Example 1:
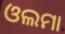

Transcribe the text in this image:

ଓଲମା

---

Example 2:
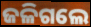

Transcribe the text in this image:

ଜଳିଗଲେ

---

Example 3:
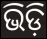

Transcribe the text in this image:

ଭିଡ଼ି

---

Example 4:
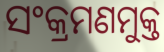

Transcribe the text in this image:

ସଂକ୍ରମଣମୁକ୍ତ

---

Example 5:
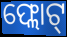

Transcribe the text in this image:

ଫ୍ଲୋଟ୍